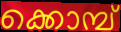
ക്കൊമ്പ്